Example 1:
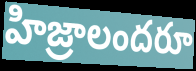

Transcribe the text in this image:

హిజ్రాలందరూ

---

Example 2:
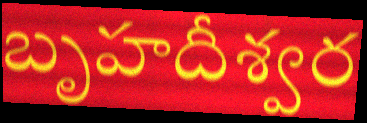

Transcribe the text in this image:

బృహదీశ్వర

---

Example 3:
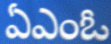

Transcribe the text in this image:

ఏఎంఓ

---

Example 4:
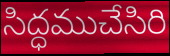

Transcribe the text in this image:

సిద్ధముచేసిరి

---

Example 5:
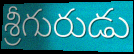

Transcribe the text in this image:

శ్రీగురుడు